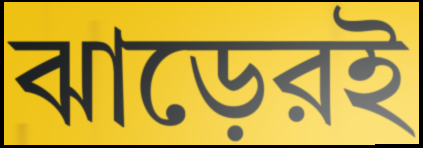
ঝাড়েরই